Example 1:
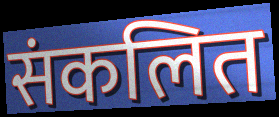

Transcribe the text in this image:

संकलित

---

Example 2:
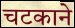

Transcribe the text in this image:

चटकाने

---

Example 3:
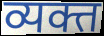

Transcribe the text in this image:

व्यक्त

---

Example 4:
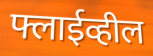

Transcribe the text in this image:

फ्लाईव्हील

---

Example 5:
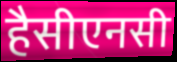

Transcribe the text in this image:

हैसीएनसी